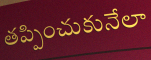
తప్పించుకునేలా